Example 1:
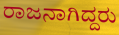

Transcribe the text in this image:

ರಾಜನಾಗಿದ್ದರು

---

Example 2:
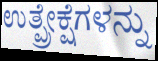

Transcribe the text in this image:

ಉತ್ಪ್ರೇಕ್ಷೆಗಳನ್ನು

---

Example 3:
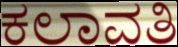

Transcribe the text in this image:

ಕಲಾವತಿ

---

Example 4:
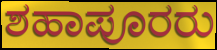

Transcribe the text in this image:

ಶಹಾಪೂರರು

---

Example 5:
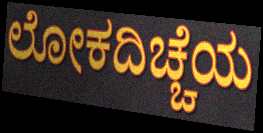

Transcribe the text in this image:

ಲೋಕದಿಚ್ಚೆಯ